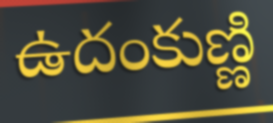
ఉదంకుణ్ణి